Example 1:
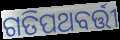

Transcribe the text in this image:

ଗତିପଥବର୍ତ୍ତୀ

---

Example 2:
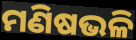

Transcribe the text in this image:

ମଣିଷଭଳି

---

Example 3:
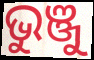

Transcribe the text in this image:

ଭୁଞ୍ଜୁ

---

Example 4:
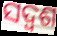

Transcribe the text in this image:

ସଦ୍ଵଶ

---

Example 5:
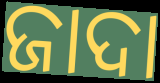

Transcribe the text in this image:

ଜାଦା